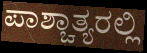
ಪಾಶ್ಚಾತ್ಯರಲ್ಲಿ